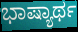
ಭಾಷ್ಯಾರ್ಥ